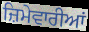
ਜ਼ਿਮੇਵਾਰੀਆਂ